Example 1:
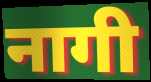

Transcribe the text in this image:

नागी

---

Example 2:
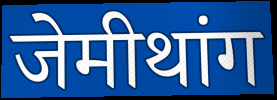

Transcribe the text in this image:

जेमीथांग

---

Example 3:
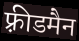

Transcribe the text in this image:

फ़्रीडमैन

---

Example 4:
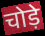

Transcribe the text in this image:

चोड़े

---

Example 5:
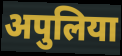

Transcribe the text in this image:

अपुलिया